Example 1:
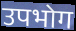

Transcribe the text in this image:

उपभोग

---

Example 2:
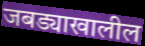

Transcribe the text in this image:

जबड्याखालील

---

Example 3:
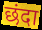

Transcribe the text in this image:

छंदा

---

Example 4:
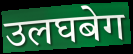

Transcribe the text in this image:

उलघबेग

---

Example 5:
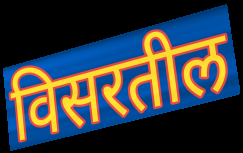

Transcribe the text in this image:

विसरतील